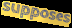
supposes